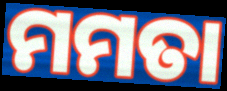
ମମତା